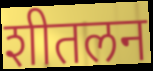
शीतलन